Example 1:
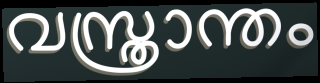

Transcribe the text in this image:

വസ്ത്രാന്തം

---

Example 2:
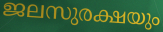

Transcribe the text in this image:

ജലസുരക്ഷയും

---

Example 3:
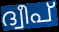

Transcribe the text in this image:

ദ്വീപ്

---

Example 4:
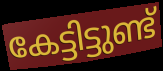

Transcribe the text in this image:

കേട്ടിട്ടുണ്ട്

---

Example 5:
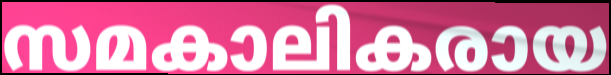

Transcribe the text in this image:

സമകാലികരായ